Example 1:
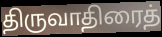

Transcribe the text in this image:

திருவாதிரைத்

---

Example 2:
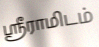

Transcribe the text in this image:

ஸ்ரீராமிடம்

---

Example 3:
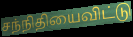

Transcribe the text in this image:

சந்நிதியைவிட்டு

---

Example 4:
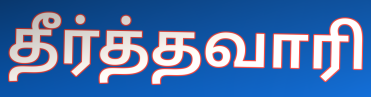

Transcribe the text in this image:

தீர்த்தவாரி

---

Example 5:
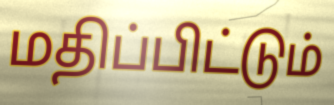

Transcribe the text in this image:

மதிப்பிட்டும்